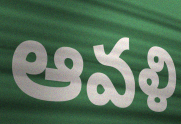
ఆవళి